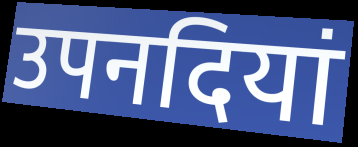
उपनदियां